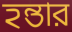
হন্তার